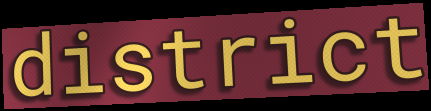
district